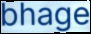
bhage